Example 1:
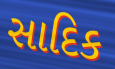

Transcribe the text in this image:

સાદિક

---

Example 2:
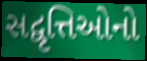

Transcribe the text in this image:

સદ્વૃત્તિઓનો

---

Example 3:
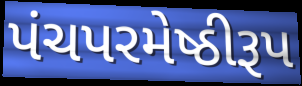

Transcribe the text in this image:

પંચપરમેષ્ઠીરૂપ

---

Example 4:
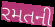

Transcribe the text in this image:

રમતની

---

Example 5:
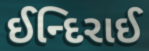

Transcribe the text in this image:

ઈન્દિરાઈ